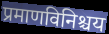
प्रमाणविनिश्चय